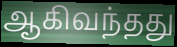
ஆகிவந்தது